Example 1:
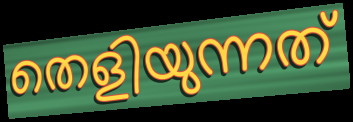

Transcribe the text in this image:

തെളിയുന്നത്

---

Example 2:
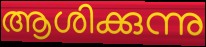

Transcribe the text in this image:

ആശിക്കുന്നു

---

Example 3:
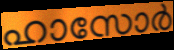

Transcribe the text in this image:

ഹാസോർ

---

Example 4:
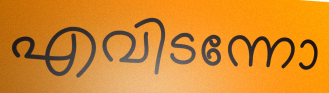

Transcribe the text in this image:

എവിടന്നോ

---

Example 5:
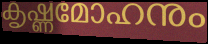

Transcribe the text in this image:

കൃഷ്ണമോഹനും